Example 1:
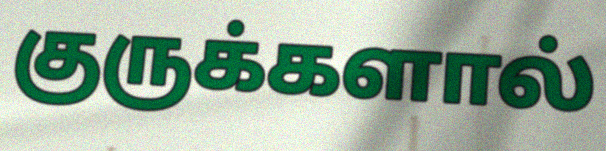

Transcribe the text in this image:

குருக்களால்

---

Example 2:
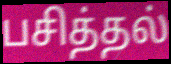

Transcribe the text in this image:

பசித்தல்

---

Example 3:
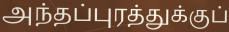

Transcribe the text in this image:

அந்தப்புரத்துக்குப்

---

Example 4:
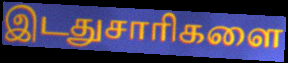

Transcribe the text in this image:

இடதுசாரிகளை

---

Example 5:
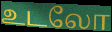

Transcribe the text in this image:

உடலோ